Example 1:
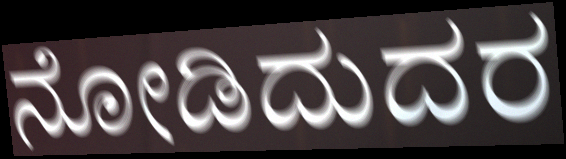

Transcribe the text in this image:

ನೋಡಿದುದರ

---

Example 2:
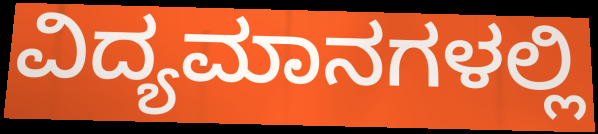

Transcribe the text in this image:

ವಿದ್ಯಮಾನಗಳಲ್ಲಿ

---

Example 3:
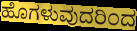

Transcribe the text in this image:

ಹೊಗಳುವುದರಿಂದ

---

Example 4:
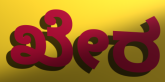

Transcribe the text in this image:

ಖೇರ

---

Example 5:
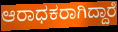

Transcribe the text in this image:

ಆರಾಧಕರಾಗಿದ್ದಾರೆ